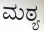
ಮಠ್ಯ